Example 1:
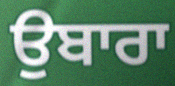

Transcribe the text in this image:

ਉਬਾਰਾ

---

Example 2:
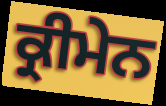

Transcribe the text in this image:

ਕ੍ਰੀਮੇਨ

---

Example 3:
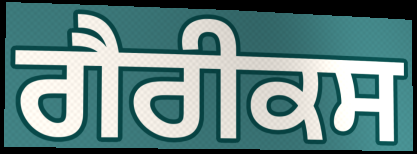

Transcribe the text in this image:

ਗੈਰੀਕਸ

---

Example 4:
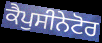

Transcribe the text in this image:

ਕੈਪੁਸੀਨੇਟੋਰ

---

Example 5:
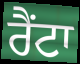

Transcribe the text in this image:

ਰੈਂਟਾ